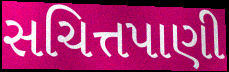
સચિત્તપાણી